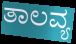
ತಾಲವ್ಯ